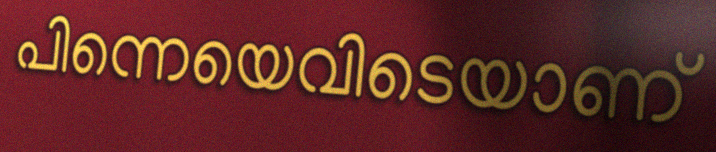
പിന്നെയെവിടെയാണ്